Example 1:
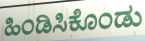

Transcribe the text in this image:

ಹಿಂಡಿಸಿಕೊಂಡು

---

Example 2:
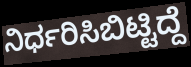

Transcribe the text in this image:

ನಿರ್ಧರಿಸಿಬಿಟ್ಟಿದ್ದೆ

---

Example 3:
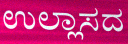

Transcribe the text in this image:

ಉಲ್ಲಾಸದ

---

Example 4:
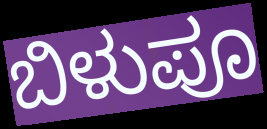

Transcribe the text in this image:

ಬಿಳುಪೂ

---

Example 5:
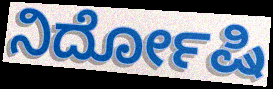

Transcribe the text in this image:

ನಿರ್ದೋಷಿ